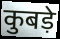
कुबड़े